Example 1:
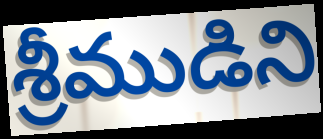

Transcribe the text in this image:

శ్రీముడిని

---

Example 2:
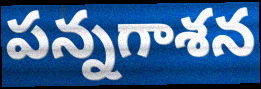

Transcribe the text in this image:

పన్నగాశన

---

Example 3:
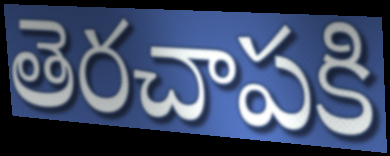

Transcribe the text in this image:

తెరచాపకి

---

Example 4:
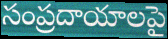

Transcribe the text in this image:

సంప్రదాయాలపై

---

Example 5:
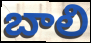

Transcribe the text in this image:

బాలి